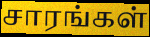
சாரங்கள்